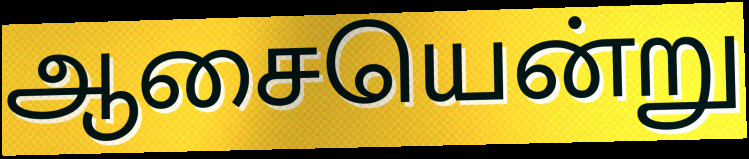
ஆசையென்று